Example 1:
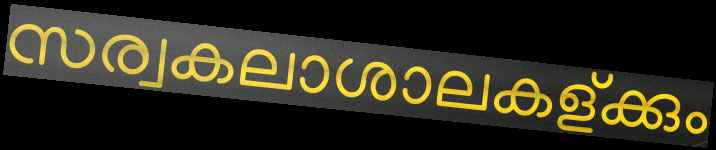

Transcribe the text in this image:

സര്വകലാശാലകള്ക്കും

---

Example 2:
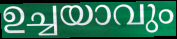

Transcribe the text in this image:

ഉച്ചയാവും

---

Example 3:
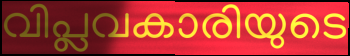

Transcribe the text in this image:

വിപ്ലവകാരിയുടെ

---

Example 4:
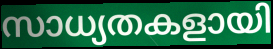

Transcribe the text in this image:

സാധ്യതകളായി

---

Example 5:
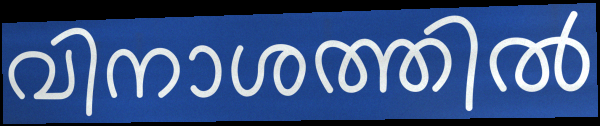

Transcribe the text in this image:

വിനാശത്തിൽ